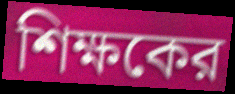
শিক্ষকের